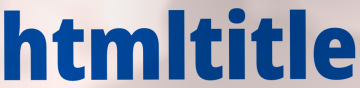
htmltitle